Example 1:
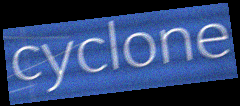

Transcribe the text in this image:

cyclone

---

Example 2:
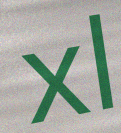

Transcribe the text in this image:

xl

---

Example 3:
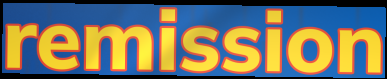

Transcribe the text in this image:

remission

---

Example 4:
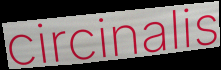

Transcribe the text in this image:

circinalis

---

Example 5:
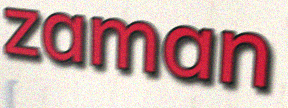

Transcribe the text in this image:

zaman